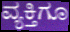
ವ್ಯಕ್ತಿಗೂ